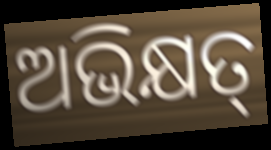
ଅଭିକ୍ଷତ୍